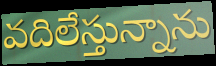
వదిలేస్తున్నాను